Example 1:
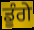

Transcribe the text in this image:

ਡੂੰਗੇ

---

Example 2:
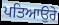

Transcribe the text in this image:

ਪਤਿਆਉਰੇ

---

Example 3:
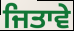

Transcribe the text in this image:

ਜਿਤਾਵੇ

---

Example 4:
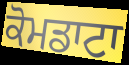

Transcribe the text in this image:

ਕੋਮਡਾਟਾ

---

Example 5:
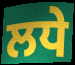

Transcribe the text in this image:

ਲਧੇ